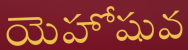
యెహోషువ